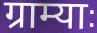
ग्राम्याः